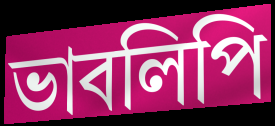
ভাবলিপি